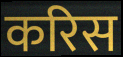
करिस